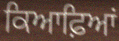
ਕਿਆਫ਼ਿਆਂ